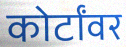
कोर्टांवर